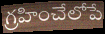
గ్రహించేలోపే